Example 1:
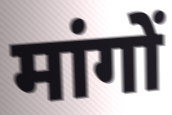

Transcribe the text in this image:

मांगों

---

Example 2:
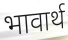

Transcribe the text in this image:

भावार्थ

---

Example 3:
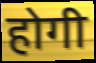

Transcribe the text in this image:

होगी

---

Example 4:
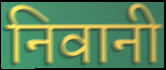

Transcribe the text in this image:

निवानी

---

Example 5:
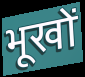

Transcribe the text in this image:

भूखों